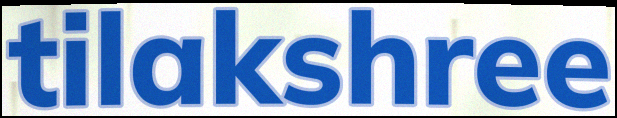
tilakshree